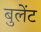
बुलेंट